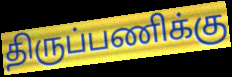
திருப்பணிக்கு